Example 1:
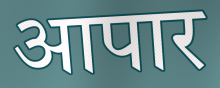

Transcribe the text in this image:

आपार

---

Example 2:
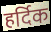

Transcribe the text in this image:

हर्दिक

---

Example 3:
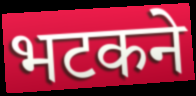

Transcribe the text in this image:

भटकने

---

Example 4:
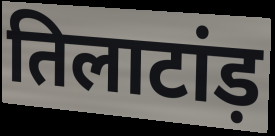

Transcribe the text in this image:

तिलाटांड़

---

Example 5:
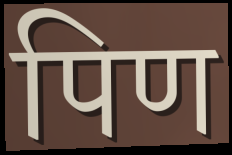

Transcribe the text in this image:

पिण